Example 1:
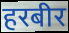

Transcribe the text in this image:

हरबीर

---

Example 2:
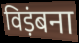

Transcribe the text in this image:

विड़ंबना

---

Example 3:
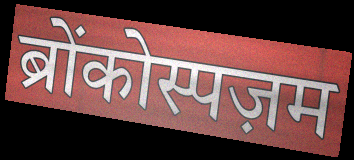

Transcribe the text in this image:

ब्रोंकोस्पज़म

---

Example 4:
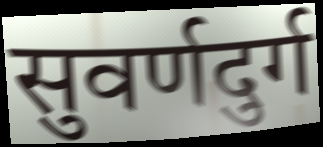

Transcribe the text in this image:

सुवर्णदुर्ग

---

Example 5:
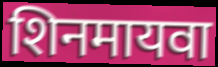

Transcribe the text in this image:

शिनमायवा